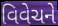
વિવેચને